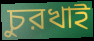
চুরখাই